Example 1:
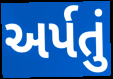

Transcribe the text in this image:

અર્પતું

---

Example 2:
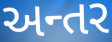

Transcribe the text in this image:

અન્તર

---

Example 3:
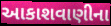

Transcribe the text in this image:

આકાશવાણીના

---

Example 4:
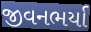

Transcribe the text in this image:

જીવનભર્યા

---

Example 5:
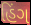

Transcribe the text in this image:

હિંગ